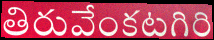
తిరువేంకటగిరి